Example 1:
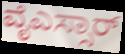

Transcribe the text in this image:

ವೈಎಸ್ಸಾರ್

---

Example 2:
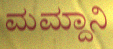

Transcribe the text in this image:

ಮಮ್ದಾನಿ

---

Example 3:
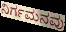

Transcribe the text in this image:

ನಿರ್ಗಮನವು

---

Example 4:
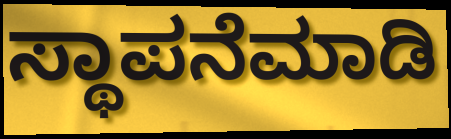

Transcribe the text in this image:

ಸ್ಥಾಪನೆಮಾಡಿ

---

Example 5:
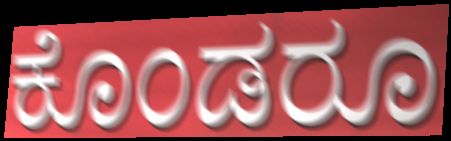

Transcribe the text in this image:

ಕೊಂಡರೂ